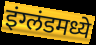
इंग्लंडमध्ये